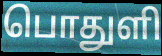
பொதுளி